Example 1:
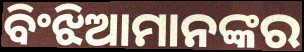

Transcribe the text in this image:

ବିଂଝିଆମାନଙ୍କର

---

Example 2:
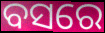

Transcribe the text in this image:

ବସରେ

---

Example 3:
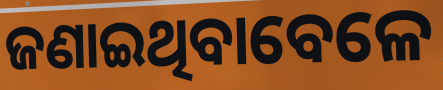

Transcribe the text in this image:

ଜଣାଇଥିବାବେଳେ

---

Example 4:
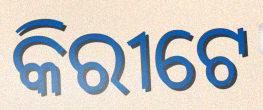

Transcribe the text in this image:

କିରୀଟେ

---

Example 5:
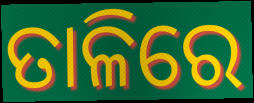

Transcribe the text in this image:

ତାଳିରେ